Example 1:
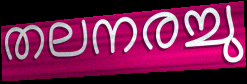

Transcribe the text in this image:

തലനരച്ചു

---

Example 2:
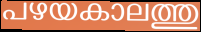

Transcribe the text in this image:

പഴയകാലത്തു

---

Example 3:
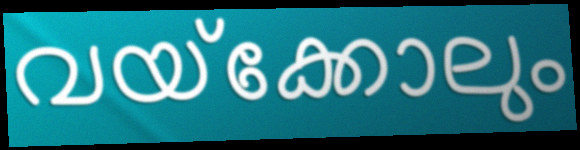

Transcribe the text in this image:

വയ്‌ക്കോലും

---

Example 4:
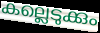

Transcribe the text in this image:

കല്ലെടുക്കും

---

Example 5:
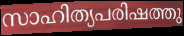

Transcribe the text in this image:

സാഹിത്യപരിഷത്തു